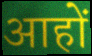
आहों